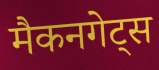
मैकनगेट्स